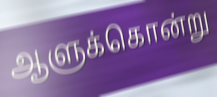
ஆளுக்கொன்று